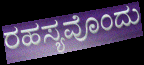
ರಹಸ್ಯವೊಂದು